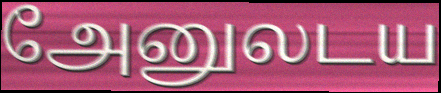
அேனுலடய